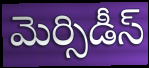
మెర్సిడీస్